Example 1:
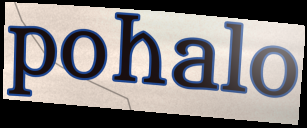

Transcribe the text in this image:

pohalo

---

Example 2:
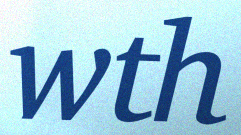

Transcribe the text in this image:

wth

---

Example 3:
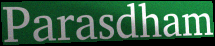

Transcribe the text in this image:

Parasdham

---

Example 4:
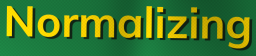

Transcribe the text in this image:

Normalizing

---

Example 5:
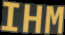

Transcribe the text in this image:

IHM